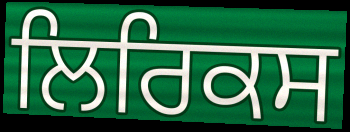
ਲਿਰਿਕਸ